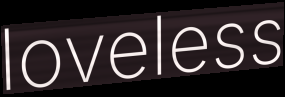
loveless